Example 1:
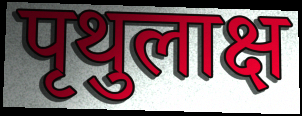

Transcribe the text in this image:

पृथुलाक्ष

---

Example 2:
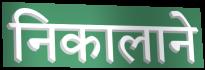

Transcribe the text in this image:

निकालाने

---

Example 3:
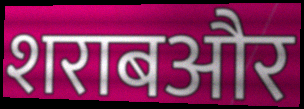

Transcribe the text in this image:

शराबऔर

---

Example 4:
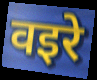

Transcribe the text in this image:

वइरे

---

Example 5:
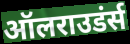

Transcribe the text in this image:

ऑलराउडंर्स